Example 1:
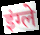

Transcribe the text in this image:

इंग्ले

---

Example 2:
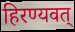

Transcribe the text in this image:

हिरण्यवत्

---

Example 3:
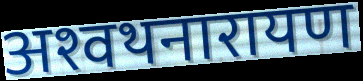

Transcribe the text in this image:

अश्वथनारायण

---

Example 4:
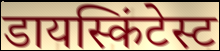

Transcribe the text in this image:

डायस्किंटेस्ट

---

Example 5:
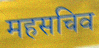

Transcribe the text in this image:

महसचिव